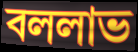
বললাভ